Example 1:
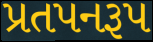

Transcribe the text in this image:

પ્રતપનરૂપ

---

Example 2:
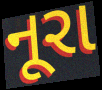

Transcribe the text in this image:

નૂરા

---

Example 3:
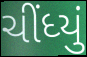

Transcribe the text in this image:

ચીંધ્યું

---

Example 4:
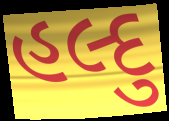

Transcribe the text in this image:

હલ્દુ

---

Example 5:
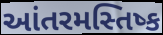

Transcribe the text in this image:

આંતરમસ્તિષ્ક